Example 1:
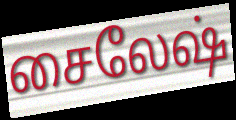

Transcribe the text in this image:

சைலேஷ்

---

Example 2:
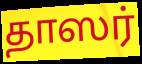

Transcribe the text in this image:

தாஸர்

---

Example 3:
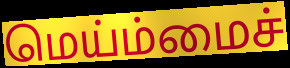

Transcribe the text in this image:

மெய்ம்மைச்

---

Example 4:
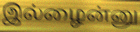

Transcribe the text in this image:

இல்ழைன்னு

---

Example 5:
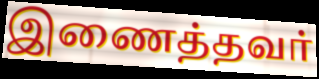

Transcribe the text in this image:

இணைத்தவர்